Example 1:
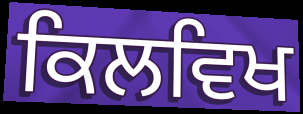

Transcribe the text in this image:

ਕਿਲਵਿਖ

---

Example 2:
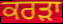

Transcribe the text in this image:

ਕਰੜਾ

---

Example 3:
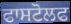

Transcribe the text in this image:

ਫਾਸਟੋਲਫ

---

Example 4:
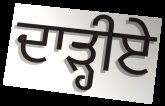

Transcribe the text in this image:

ਦਾੜ੍ਹੀਏ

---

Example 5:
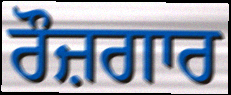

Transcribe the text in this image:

ਰੌਜ਼ਗਾਰ